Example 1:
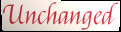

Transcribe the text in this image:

Unchanged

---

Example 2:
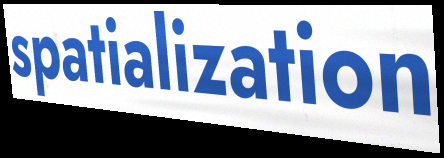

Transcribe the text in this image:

spatialization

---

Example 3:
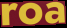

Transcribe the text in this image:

roa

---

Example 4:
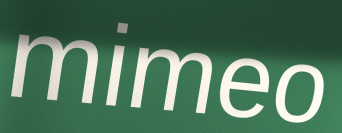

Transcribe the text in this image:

mimeo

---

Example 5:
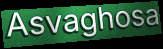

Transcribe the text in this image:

Asvaghosa